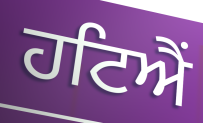
ਹਟਿਐਂ